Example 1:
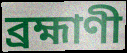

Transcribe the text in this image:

ব্রহ্মাণী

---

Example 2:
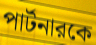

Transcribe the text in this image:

পার্টনারকে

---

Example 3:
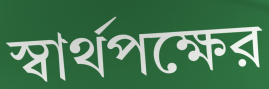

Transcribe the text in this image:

স্বার্থপক্ষের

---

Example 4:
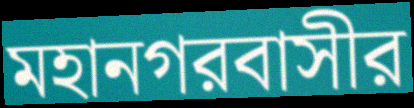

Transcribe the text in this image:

মহানগরবাসীর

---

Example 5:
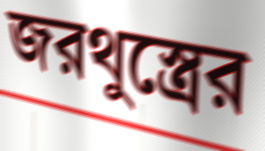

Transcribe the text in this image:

জরথুস্ত্রের